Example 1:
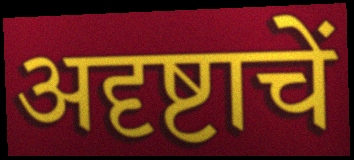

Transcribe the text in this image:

अदृष्टाचें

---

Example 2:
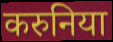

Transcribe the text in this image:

करुनिया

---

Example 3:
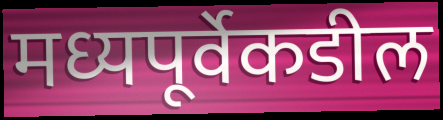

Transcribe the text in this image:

मध्यपूर्वेकडील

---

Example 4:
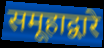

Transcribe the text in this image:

समूहाद्वारे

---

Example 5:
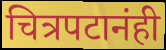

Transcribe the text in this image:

चित्रपटानंही